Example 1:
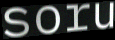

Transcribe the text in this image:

soru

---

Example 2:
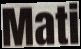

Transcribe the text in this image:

Mati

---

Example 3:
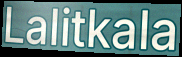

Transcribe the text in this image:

Lalitkala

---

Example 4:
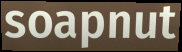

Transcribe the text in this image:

soapnut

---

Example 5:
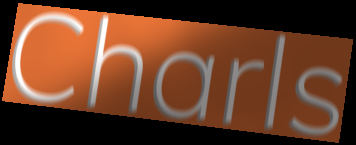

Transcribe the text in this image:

Charls